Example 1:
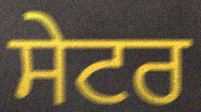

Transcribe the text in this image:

ਸੇਟਰ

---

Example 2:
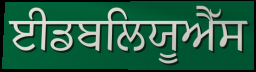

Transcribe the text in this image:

ਈਡਬਲਿਯੂਐੱਸ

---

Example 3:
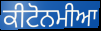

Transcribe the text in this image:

ਕੀਟੋਨਮੀਆ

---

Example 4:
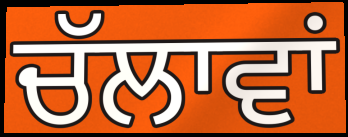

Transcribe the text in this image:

ਚੱਲਾਵਾਂ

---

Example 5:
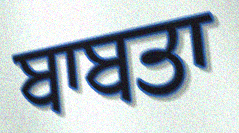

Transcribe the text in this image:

ਬਾਬਤਾ